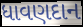
ધાવણદાન